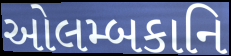
ઓલમ્બકાનિ